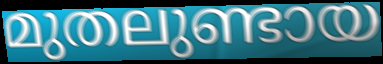
മുതലുണ്ടായ